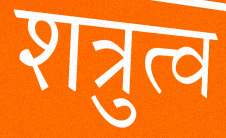
शत्रुत्व